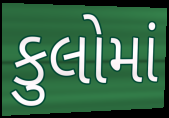
કુલોમાં